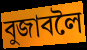
বুজাবলৈ